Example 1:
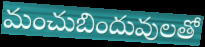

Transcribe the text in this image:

మంచుబిందువులతో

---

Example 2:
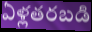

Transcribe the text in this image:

ఏళ్లతరబడి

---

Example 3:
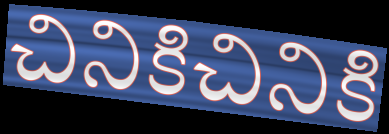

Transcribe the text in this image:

చినికిచినికి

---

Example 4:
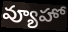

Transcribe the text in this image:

వ్యూహో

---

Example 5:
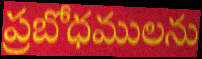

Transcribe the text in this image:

ప్రబోధములను